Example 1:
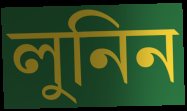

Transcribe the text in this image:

লুনিন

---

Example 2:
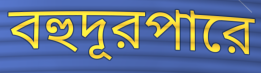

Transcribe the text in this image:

বহুদূরপারে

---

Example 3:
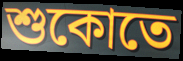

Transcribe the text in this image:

শুকোতে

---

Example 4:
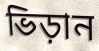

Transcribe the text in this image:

ভিড়ান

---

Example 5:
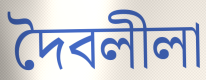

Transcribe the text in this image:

দৈবলীলা